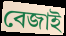
বেজাই